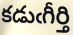
కడుఁగీర్తి